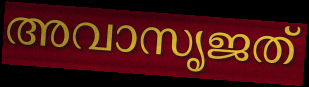
അവാസൃജത്